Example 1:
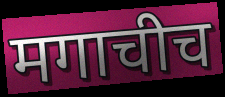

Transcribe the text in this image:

मगाचीच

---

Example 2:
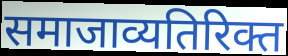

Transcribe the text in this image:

समाजाव्यतिरिक्त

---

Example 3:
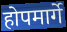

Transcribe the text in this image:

होपमार्गे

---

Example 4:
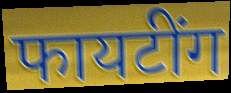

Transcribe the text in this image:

फायटींग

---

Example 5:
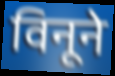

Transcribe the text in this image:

विनूने